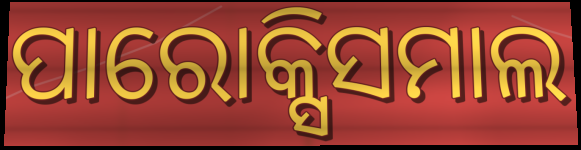
ପାରୋକ୍ସିସମାଲ